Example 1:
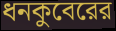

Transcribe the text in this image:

ধনকুবেরের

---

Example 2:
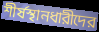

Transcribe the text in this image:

শীর্ষস্থানধারীদের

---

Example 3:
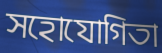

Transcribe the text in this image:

সহোযোগিতা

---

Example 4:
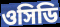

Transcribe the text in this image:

ওসিডি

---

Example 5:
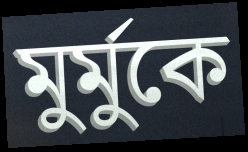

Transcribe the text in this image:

মুর্মুকে